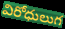
విరోధులుగ